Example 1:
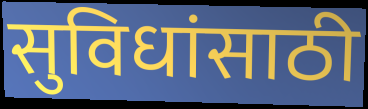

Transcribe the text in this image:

सुविधांसाठी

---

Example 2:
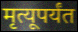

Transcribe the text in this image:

मृत्यूपर्यंत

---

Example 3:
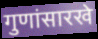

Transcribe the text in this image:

गुणांसारखे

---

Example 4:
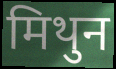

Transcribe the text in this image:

मिथुन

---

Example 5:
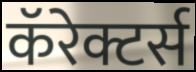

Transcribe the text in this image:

कॅरेक्टर्स